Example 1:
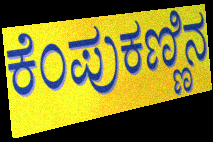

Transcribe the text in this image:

ಕೆಂಪುಕಣ್ಣಿನ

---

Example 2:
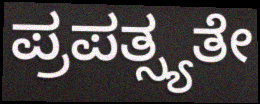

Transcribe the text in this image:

ಪ್ರಪತ್ಸ್ಯತೇ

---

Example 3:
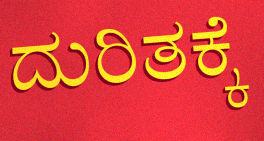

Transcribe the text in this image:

ದುರಿತಕ್ಕೆ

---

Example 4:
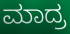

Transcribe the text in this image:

ಮಾದ್ರ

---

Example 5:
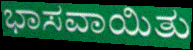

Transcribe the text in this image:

ಭಾಸವಾಯಿತು